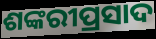
ଶଙ୍କରୀପ୍ରସାଦ